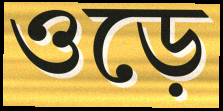
ওড়ে